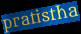
pratistha